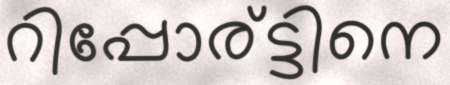
റിപ്പോര്ട്ടിനെ